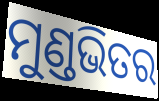
ମୁଣ୍ଡଭିତର